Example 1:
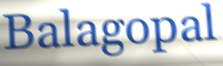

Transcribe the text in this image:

Balagopal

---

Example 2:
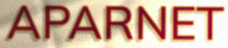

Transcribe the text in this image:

APARNET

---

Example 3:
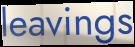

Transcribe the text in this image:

leavings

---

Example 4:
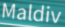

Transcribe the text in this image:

Maldiv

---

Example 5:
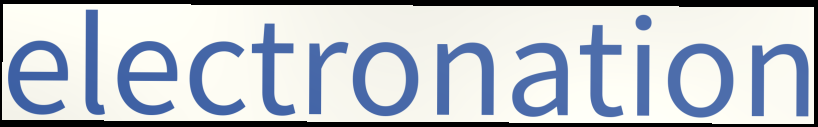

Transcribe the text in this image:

electronation